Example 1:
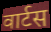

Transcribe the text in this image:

वार्टस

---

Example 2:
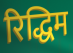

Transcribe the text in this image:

रिद्धिम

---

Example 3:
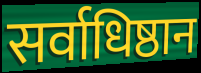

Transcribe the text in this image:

सर्वाधिष्ठान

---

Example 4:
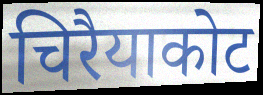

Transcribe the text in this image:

चिरैयाकोट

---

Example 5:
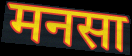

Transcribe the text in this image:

मनसा